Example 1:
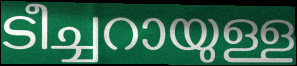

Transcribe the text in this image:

ടീച്ചറായുള്ള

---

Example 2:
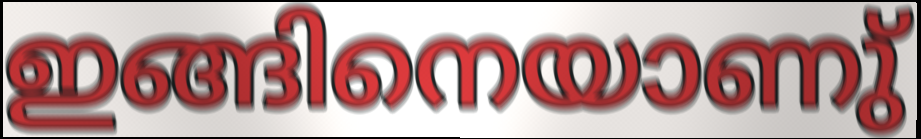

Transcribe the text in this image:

ഇങ്ങിനെയാണു്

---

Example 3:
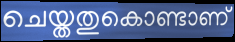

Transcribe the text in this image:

ചെയ്തതുകൊണ്ടാണ്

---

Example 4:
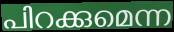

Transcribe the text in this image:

പിറക്കുമെന്ന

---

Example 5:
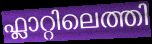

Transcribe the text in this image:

ഫ്ലാറ്റിലെത്തി